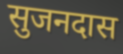
सुजनदास